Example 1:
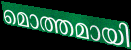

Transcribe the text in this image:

മൊത്തമായി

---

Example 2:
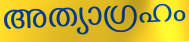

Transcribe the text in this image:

അത്യാഗ്രഹം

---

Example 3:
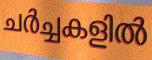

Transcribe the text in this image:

ചർച്ചകളിൽ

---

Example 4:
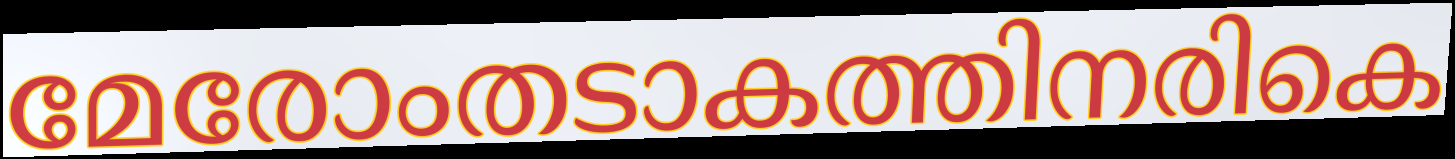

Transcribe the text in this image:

മേരോംതടാകത്തിനരികെ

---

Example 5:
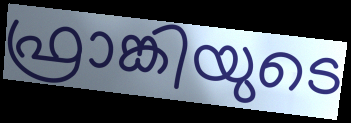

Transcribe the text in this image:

ഫ്രാങ്കിയുടെ